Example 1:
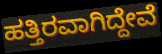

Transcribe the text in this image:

ಹತ್ತಿರವಾಗಿದ್ದೇವೆ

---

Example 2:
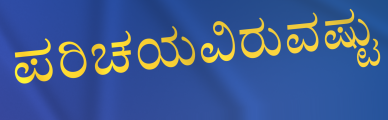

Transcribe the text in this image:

ಪರಿಚಯವಿರುವಷ್ಟು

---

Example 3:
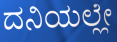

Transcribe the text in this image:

ದನಿಯಲ್ಲೇ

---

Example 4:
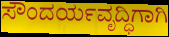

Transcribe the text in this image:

ಸೌಂದರ್ಯವೃದ್ಧಿಗಾಗಿ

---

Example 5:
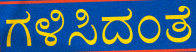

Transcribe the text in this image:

ಗಳಿಸಿದಂತೆ